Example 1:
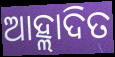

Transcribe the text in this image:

ଆହ୍ଲାଦିତ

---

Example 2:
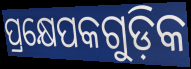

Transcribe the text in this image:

ପ୍ରକ୍ଷେପକଗୁଡ଼ିକ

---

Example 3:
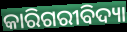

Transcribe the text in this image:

କାରିଗରୀବିଦ୍ୟା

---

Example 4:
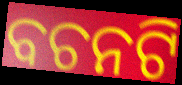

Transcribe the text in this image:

ବଚନଟି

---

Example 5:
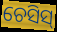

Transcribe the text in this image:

ଚେସିସ୍